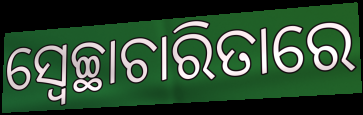
ସ୍ୱେଚ୍ଛାଚାରିତାରେ